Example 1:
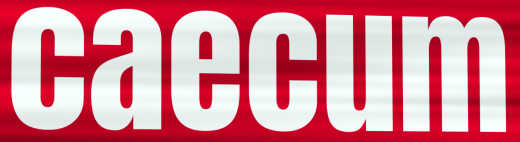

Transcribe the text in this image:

caecum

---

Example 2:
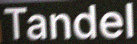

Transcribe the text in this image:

Tandel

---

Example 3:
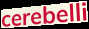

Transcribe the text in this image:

cerebelli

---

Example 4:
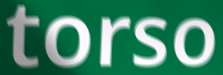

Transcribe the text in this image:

torso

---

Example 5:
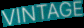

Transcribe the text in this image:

VINTAGE